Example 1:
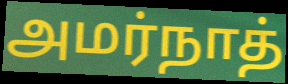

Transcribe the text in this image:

அமர்நாத்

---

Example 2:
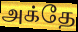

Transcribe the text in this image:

அக்தே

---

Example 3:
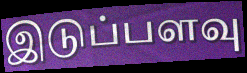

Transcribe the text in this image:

இடுப்பளவு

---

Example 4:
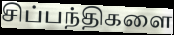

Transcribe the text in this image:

சிப்பந்திகளை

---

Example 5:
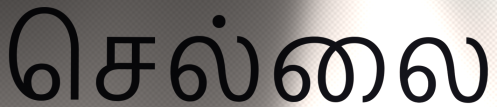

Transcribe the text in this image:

செல்லை